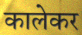
कालेकर